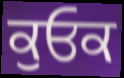
ਕੁਓਕ